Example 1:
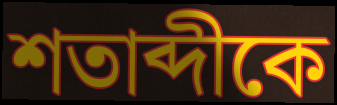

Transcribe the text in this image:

শতাব্দীকে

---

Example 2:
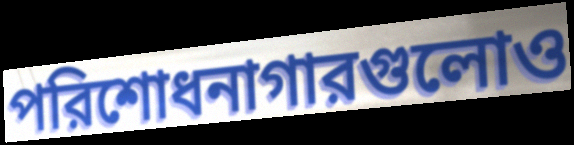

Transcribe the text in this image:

পরিশোধনাগারগুলোও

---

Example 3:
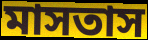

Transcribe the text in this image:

মাসতাস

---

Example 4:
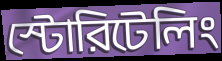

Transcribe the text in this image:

স্টোরিটেলিং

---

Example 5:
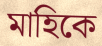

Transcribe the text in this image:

মাহিকে